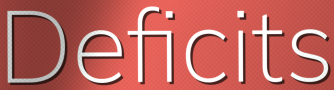
Deficits